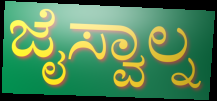
ಜೈಸ್ವಾಲ್ನ